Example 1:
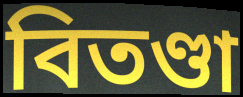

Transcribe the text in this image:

বিতণ্ডা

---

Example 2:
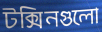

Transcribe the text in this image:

টক্সিনগুলো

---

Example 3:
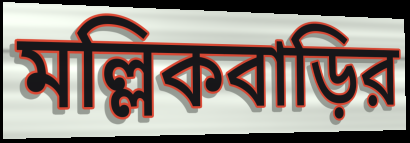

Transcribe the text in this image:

মল্লিকবাড়ির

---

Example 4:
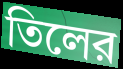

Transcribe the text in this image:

তিলের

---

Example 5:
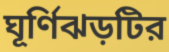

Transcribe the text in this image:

ঘূর্ণিঝড়টির